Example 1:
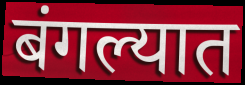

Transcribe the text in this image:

बंगल्यात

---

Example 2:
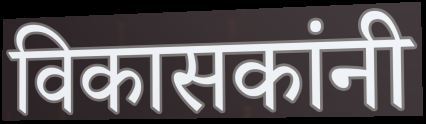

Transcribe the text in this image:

विकासकांनी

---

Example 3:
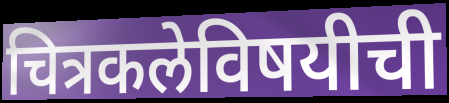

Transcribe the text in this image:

चित्रकलेविषयीची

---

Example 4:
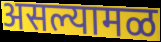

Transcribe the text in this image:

असल्यामळ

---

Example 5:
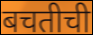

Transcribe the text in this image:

बचतीची